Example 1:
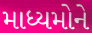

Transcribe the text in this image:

માધ્યમોને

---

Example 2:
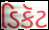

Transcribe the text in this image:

ડિકૅટ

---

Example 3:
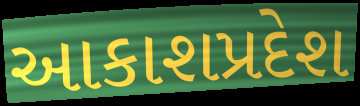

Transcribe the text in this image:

આકાશપ્રદેશ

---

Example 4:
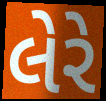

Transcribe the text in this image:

લેરે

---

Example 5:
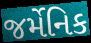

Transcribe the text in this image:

જર્મેનિક